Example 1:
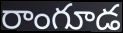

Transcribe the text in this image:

రాంగూడ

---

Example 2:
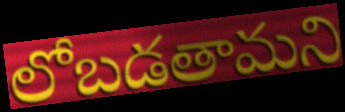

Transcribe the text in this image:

లోబడతామని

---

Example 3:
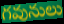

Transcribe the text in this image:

గవునులు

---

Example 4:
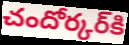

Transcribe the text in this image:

చందోర్కర్‌కి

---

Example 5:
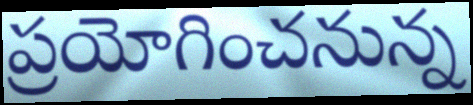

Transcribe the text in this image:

ప్రయోగించనున్న